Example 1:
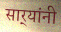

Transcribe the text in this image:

सार्यांनी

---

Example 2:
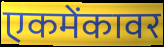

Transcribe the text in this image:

एकमेंकावर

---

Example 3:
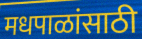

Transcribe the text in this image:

मधपाळांसाठी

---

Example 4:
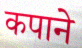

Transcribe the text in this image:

कपाने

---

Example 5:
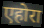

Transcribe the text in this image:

एहोरा